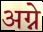
अग्ने